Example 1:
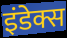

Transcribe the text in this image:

इंडेक्स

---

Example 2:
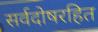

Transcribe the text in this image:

सर्वदोषरहित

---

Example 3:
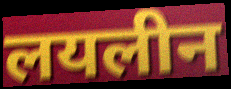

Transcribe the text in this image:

लयलीन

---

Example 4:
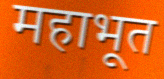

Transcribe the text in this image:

महाभूत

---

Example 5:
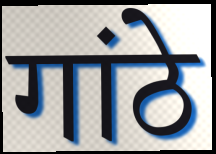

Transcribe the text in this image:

गांठे